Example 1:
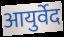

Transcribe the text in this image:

आयुर्वेद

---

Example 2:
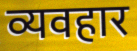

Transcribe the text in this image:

व्यवहार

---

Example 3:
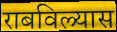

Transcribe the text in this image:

राबविल्यास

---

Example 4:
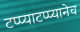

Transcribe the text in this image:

टप्प्याटप्प्यानेच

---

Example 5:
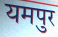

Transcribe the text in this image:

यमपुर